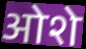
ओशे